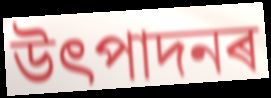
উৎপাদনৰ